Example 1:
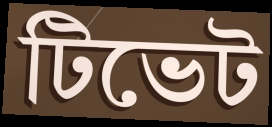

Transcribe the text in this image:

টিভেট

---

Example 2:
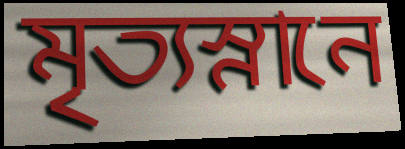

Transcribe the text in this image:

মৃত্যস্নানে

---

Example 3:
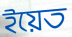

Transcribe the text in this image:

ইয়েত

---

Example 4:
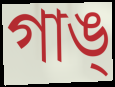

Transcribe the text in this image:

গাঙ্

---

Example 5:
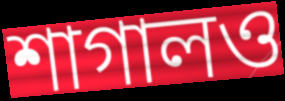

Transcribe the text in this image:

শাগালও